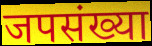
जपसंख्या